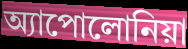
অ্যাপোলোনিয়া